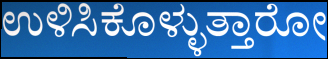
ಉಳಿಸಿಕೊಳ್ಳುತ್ತಾರೋ